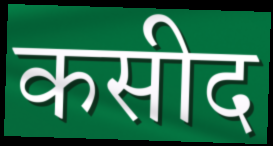
कसीद